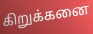
கிறுக்கனை